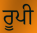
ਰੂਪੀ